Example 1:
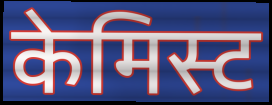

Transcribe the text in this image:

केमिस्ट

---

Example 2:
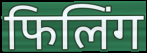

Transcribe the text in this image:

फिलिंग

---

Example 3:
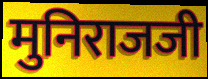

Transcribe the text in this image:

मुनिराजजी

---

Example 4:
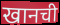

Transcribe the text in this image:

खानची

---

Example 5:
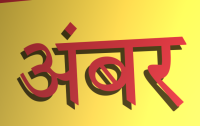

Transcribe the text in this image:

अंबर